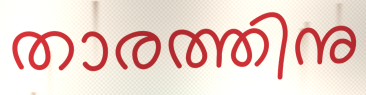
താരത്തിനു